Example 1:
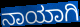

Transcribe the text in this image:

ನಾಯಾಗಿ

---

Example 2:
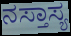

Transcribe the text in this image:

ನಸ್ತಾಸ್ಯ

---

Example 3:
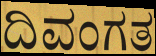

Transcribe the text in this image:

ದಿವಂಗತ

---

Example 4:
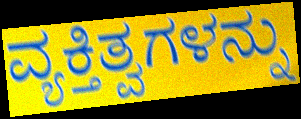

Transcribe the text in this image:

ವ್ಯಕ್ತಿತ್ವಗಳನ್ನು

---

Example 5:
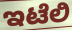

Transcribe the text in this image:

ಇಟೆಲಿ